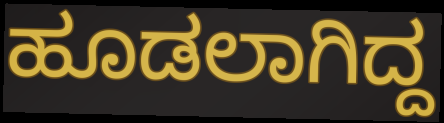
ಹೂಡಲಾಗಿದ್ದ